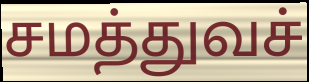
சமத்துவச்